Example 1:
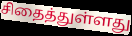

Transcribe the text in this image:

சிதைத்துள்ளது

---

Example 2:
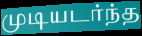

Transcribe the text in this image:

முடியடர்ந்த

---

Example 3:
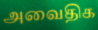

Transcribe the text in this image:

அவைதிக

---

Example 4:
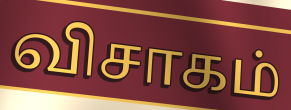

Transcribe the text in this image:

விசாகம்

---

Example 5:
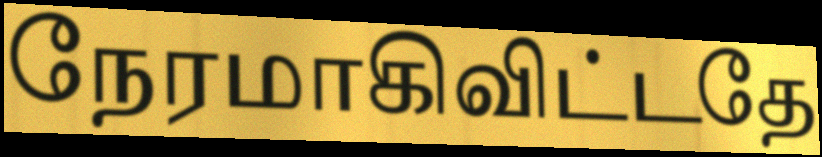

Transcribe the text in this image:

நேரமாகிவிட்டதே